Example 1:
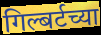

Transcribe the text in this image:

गिल्बर्टच्या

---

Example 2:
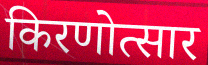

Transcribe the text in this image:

किरणोत्सार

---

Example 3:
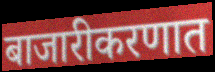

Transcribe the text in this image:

बाजारीकरणात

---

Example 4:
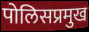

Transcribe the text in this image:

पोलिसप्रमुख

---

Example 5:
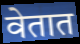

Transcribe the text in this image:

वेतात